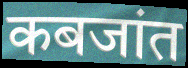
कबजांत